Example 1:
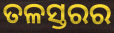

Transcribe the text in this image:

ତଳସ୍ତରର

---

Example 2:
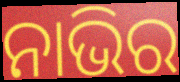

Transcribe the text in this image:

ନାଭିର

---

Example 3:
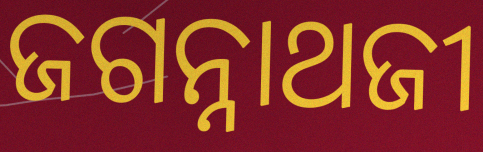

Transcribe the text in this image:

ଜଗନ୍ନାଥଜୀ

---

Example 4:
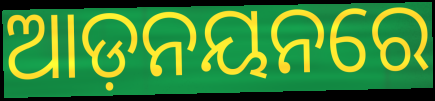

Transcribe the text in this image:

ଆଡ଼ନୟନରେ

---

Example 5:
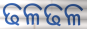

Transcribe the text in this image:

ଢଳଢଳ